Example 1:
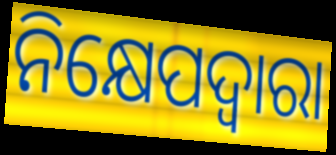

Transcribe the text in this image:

ନିକ୍ଷେପଦ୍ୱାରା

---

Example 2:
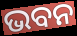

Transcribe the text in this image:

ଭବନ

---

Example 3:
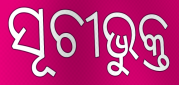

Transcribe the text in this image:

ସୂଚୀଭୁକ୍ତ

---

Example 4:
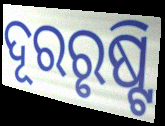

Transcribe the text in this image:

ଦୂରରୃଷ୍ଟି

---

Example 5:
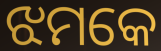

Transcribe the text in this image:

ଝମକେ